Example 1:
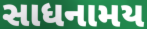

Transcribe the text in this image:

સાધનામય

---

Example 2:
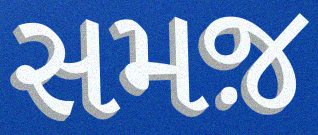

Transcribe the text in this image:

સમજ઼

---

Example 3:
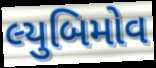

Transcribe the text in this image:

લ્યુબિમોવ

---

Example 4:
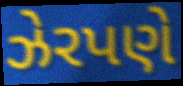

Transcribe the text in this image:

ઝેરપણે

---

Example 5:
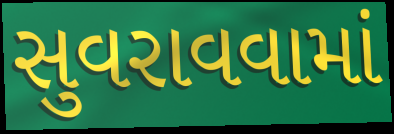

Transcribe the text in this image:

સુવરાવવામાં